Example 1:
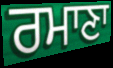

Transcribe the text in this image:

ਰਮਾਣਾ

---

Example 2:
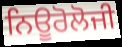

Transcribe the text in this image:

ਨਿਊਰੋਲੋਜੀ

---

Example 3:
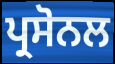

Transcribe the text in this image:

ਪ੍ਰਸੋਨਲ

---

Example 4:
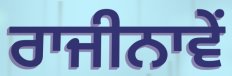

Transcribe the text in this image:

ਰਾਜੀਨਾਵੇਂ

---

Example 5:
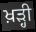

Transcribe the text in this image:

ਖ਼ੜ੍ਹੀ